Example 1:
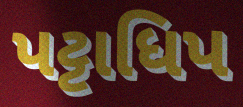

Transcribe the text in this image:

પટ્ટાધિપ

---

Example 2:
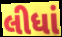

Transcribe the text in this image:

લીધાં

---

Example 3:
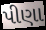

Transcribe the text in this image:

પીણા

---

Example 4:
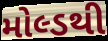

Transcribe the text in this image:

મોલ્ડથી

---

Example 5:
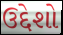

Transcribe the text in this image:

ઉદ્દેશો